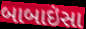
બાબાઇંસા